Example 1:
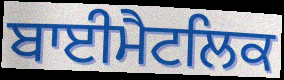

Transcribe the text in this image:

ਬਾਈਮੈਟਲਿਕ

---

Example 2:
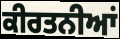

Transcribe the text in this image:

ਕੀਰਤਨੀਆਂ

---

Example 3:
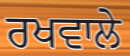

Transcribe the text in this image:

ਰਖਵਾਲੇ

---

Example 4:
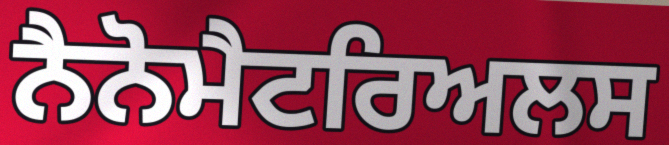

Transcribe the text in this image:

ਨੈਨੋਮੈਟਰਿਅਲਸ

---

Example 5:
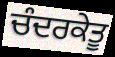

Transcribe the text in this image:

ਚੰਦਰਕੇਤੂ